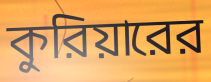
কুরিয়ারের